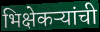
भिक्षेकऱ्यांची